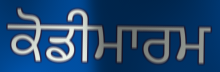
ਕੋਡੀਮਾਰਮ